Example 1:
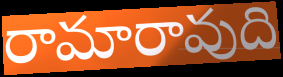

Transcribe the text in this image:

రామారావుది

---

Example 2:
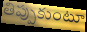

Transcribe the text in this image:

తిప్పుకుంటూ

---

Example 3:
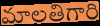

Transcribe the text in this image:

మాలతిగారి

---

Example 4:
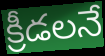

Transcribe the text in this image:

క్రీడలనే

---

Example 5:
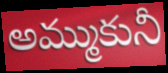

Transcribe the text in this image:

అమ్ముకునీ